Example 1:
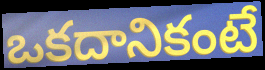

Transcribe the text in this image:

ఒకదానికంటే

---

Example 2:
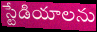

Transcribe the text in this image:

స్టేడియాలను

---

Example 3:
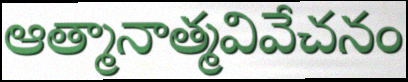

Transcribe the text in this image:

ఆత్మానాత్మవివేచనం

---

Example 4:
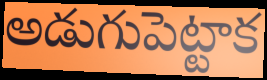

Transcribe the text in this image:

అడుగుపెట్టాక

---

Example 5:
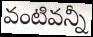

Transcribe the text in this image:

వంటివన్నీ